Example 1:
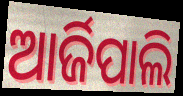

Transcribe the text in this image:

ଆର୍ଜିପାଲି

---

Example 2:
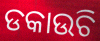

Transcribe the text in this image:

ଡକାଉଚି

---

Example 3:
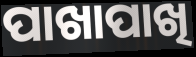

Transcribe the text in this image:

ପାଖାପାଖି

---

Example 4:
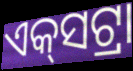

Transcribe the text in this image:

ଏକ୍‍ସଟ୍ରା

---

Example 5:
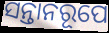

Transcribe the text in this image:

ସନ୍ତାନରୂପେ